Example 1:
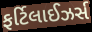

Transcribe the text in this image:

ફર્ટિલાઈઝર્સ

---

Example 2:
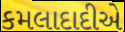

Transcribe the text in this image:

કમલાદાદીએ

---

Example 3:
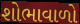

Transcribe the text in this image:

શોભાવાળો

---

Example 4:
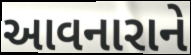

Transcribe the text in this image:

આવનારાને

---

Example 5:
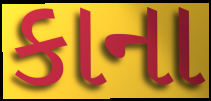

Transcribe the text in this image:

કાના